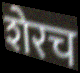
शेरच